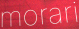
morari